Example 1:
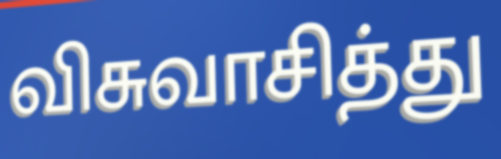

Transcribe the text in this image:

விசுவாசித்து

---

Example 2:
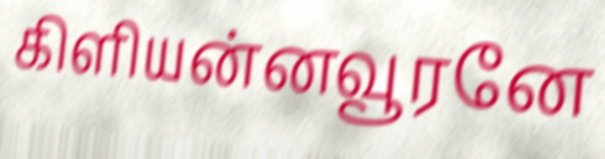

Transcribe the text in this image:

கிளியன்னவூரனே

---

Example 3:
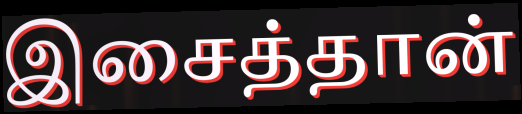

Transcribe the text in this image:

இசைத்தான்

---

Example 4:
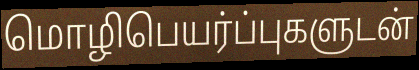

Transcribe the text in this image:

மொழிபெயர்ப்புகளுடன்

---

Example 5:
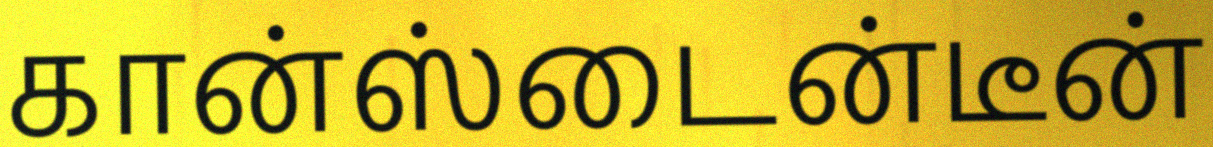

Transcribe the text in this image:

கான்ஸ்டைன்டீன்